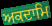
ਅਕਦਾਮਿ